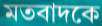
মতবাদকে